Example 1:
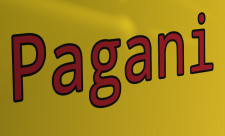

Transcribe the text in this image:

Pagani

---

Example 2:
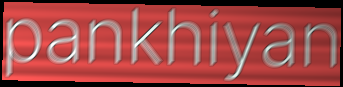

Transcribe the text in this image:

pankhiyan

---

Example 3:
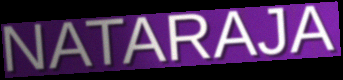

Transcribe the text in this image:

NATARAJA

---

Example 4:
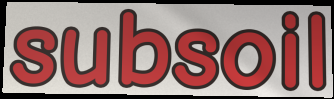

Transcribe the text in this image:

subsoil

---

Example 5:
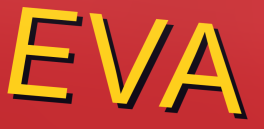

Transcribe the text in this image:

EVA